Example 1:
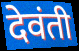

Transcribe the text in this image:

देवंती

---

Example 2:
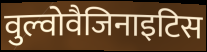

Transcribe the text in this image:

वुल्वोवैजिनाइटिस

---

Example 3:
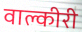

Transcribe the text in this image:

वाल्कीरी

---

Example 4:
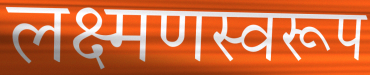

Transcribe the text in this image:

लक्ष्मणस्वरूप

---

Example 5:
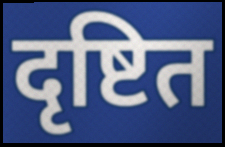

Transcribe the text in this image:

दृष्टित